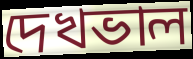
দেখভাল